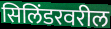
सिलिंडरवरील